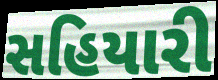
સહિયારી